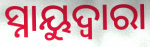
ସ୍ନାୟୁଦ୍ଵାରା